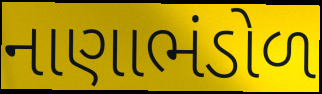
નાણાભંડોળ